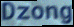
Dzong